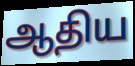
ஆதிய